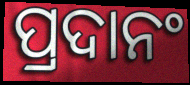
ପ୍ରଦାନଂ